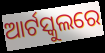
ଆର୍ଟସ୍କୁଲରେ